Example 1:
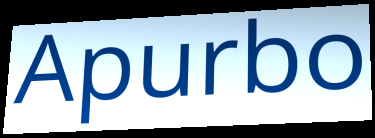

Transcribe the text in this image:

Apurbo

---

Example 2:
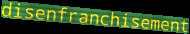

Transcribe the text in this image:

disenfranchisement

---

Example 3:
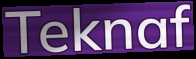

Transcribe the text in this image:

Teknaf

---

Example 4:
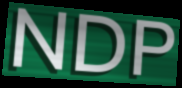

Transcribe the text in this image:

NDP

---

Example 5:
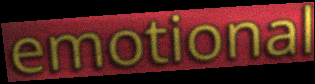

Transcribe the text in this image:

emotional